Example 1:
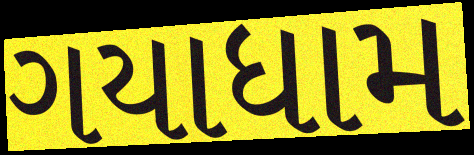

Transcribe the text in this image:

ગયાધામ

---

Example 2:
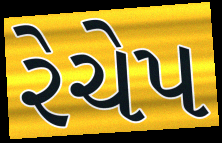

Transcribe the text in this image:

રેચેપ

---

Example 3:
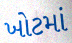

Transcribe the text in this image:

ખોટમાં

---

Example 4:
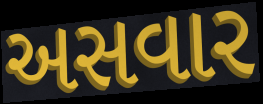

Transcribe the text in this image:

અસવાર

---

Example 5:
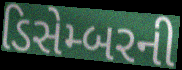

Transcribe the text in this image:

ડિસેમ્બરની